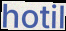
hotil